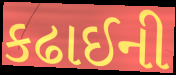
કઢાઈની